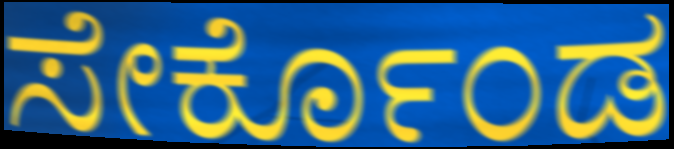
ಸೇರ್ಕೊಂಡ